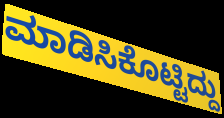
ಮಾಡಿಸಿಕೊಟ್ಟಿದ್ದು